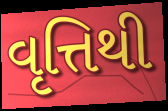
વૃત્તિથી